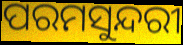
ପରମସୁନ୍ଦରୀ